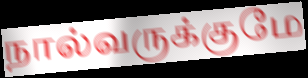
நால்வருக்குமே